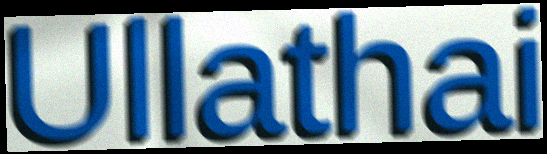
Ullathai